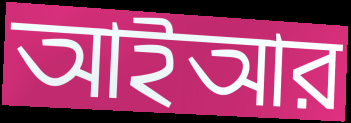
আইআর